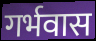
गर्भवास